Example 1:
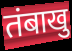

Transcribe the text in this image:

तंबाखु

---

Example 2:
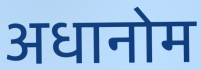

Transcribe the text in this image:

अधानोम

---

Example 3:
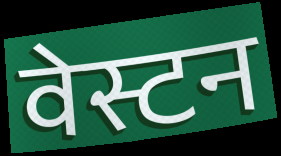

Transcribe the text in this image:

वेस्टन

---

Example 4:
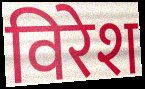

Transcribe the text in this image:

विरेश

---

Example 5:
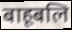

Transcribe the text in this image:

बाहूबलि